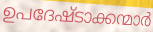
ഉപദേഷ്ടാക്കന്മാർ